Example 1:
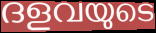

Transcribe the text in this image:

ദളവയുടെ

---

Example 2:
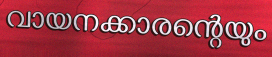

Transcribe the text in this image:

വായനക്കാരന്റെയും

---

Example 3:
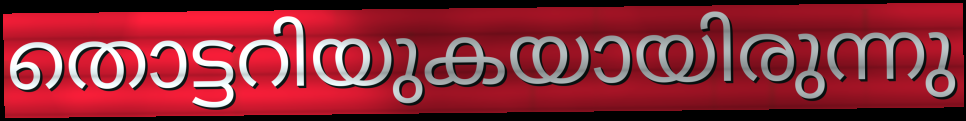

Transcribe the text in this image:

തൊട്ടറിയുകയായിരുന്നു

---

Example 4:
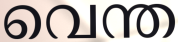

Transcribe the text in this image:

വെന്ത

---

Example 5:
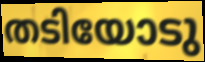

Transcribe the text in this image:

തടിയോടു